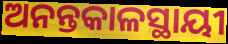
ଅନନ୍ତକାଳସ୍ଥାୟୀ